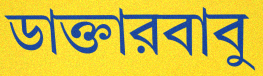
ডাক্তারবাবু